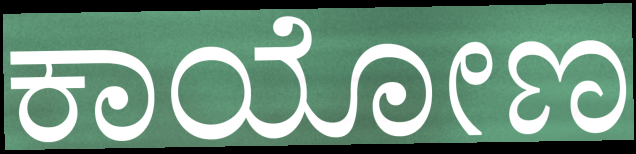
ಕಾಯೋಣ